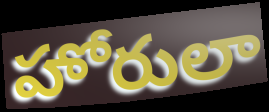
హోరులా